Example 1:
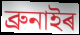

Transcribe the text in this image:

ব্ৰুনাইৰ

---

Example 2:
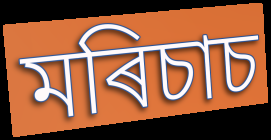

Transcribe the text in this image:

মৰিচাচ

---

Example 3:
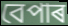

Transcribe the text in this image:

বেপাৰ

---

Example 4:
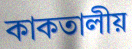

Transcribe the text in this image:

কাকতালীয়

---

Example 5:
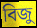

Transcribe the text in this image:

বিজু